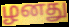
ழனது